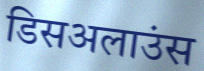
डिसअलाउंस